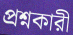
প্রশ্নকারী